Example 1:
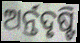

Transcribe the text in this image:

ଅର୍ନ୍ତଦୃଷ୍ଟି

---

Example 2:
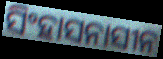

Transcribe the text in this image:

ସିଂହାସନାସୀନ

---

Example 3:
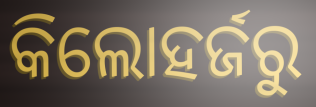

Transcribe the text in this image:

କିଲୋହର୍ଜରୁ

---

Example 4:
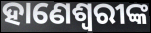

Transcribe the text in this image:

ହାଣେଶ୍ୱରୀଙ୍କ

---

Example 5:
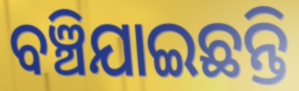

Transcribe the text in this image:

ବଞ୍ଚିଯାଇଛନ୍ତି